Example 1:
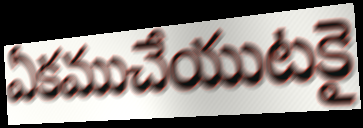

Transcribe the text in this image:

ఏకముచేయుటకై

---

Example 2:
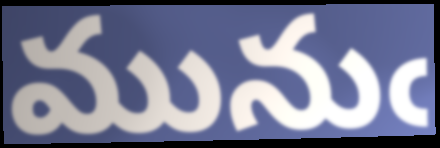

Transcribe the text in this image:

మునుఁ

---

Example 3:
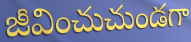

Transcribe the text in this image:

జీవించుచుండగా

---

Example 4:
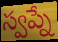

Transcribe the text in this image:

స్వప్నే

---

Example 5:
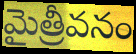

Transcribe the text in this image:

మైత్రీవనం